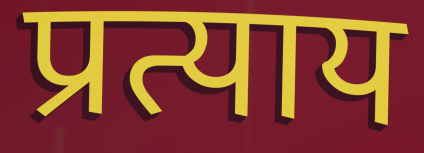
प्रत्याय